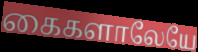
கைகளாலேயே